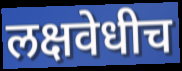
लक्षवेधीच